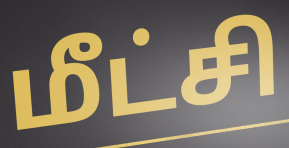
மீட்சி